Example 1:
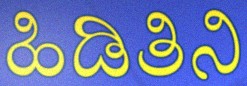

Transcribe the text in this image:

ಹಿಡಿತಿನಿ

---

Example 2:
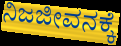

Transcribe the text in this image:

ನಿಜಜೀವನಕ್ಕೆ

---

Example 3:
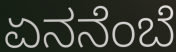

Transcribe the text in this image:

ಏನನೆಂಬೆ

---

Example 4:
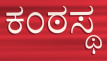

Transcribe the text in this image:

ಕಂಠಸ್ಥ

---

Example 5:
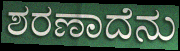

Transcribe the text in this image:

ಶರಣಾದೆನು